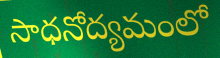
సాధనోద్యమంలో